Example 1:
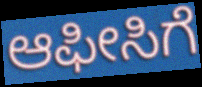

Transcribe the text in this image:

ಆಫೀಸಿಗೆ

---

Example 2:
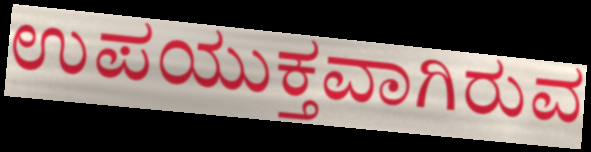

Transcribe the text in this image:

ಉಪಯುಕ್ತವಾಗಿರುವ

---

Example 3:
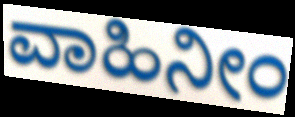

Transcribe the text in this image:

ವಾಹಿನೀಂ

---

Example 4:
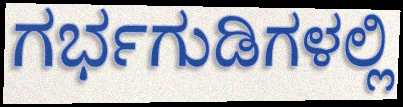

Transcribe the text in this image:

ಗರ್ಭಗುಡಿಗಳಲ್ಲಿ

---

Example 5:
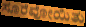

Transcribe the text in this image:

ಸೂರೆವೋಯಿತು